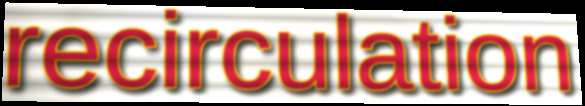
recirculation